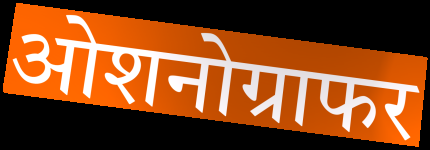
ओशनोग्राफर